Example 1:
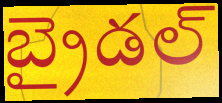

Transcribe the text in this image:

బ్రైడల్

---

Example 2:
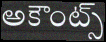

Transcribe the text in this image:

అకౌంట్స్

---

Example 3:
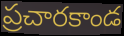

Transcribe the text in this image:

ప్రచారకాండ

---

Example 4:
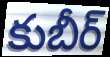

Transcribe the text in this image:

కుబీర్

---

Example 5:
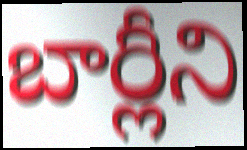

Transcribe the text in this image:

బార్లీని